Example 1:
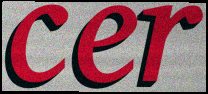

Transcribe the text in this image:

cer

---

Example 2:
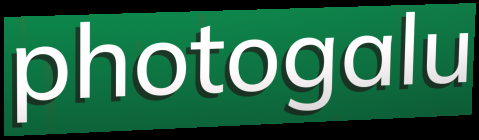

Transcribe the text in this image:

photogalu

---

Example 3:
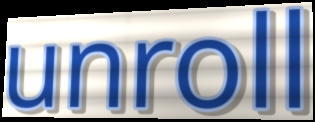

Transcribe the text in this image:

unroll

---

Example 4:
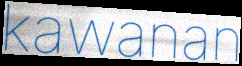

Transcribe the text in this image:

kawanan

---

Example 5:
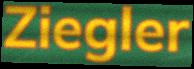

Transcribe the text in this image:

Ziegler